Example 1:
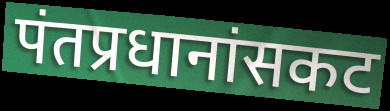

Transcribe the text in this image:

पंतप्रधानांसकट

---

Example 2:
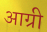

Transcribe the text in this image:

आग्री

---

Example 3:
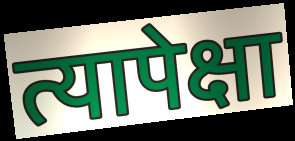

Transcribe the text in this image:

त्यापेक्षा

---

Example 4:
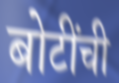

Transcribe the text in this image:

बोटींची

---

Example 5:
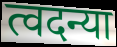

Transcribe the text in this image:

त्वदन्या